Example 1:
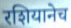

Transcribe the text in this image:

रशियानेच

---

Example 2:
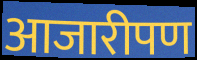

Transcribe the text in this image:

आजारीपण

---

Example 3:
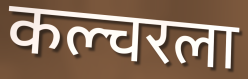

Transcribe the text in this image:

कल्चरला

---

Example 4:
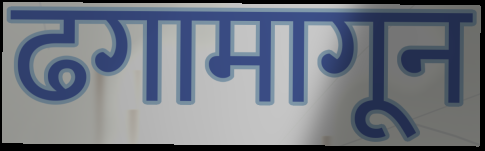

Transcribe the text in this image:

ढगामागून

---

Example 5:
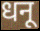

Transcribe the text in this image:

धनू